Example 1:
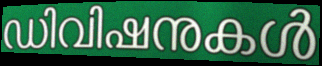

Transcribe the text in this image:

ഡിവിഷനുകൾ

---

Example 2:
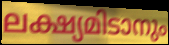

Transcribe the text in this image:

ലക്ഷ്യമിടാനും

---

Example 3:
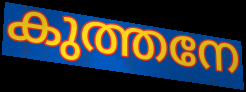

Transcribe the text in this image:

കുത്തനേ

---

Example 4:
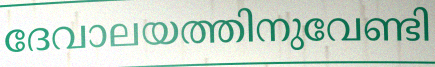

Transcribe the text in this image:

ദേവാലയത്തിനുവേണ്ടി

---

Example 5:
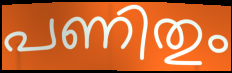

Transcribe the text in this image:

പണിതും